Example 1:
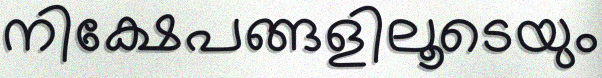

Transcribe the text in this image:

നിക്ഷേപങ്ങളിലൂടെയും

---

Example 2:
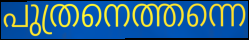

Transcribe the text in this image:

പുത്രനെത്തന്നെ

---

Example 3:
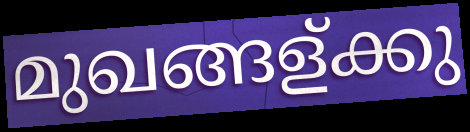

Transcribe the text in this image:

മുഖങ്ങള്ക്കു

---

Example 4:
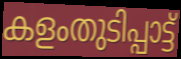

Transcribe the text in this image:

കളംതുടിപ്പാട്ട്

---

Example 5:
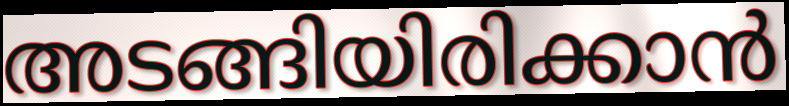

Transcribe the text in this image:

അടങ്ങിയിരിക്കാൻ